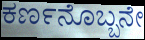
ಕರ್ಣನೊಬ್ಬನೇ